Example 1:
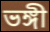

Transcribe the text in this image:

ভঙ্গী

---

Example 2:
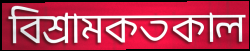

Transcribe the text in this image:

বিশ্রামকতকাল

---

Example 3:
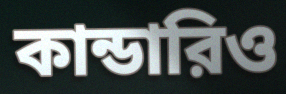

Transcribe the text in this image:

কান্ডারিও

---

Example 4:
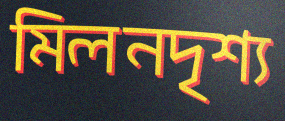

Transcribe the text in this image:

মিলনদৃশ্য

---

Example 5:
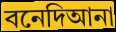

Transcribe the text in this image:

বনেদিআনা